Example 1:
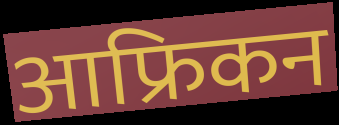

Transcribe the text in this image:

आफ्रिकन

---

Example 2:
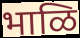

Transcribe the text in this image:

भाळि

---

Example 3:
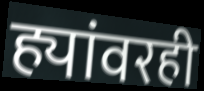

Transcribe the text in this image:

ह्यांवरही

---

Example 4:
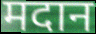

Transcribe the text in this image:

मदान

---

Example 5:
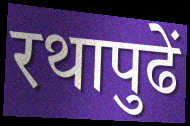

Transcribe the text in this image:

रथापुढें